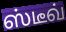
ஸ்டீவ்